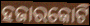
ହଜାରକୋଟି